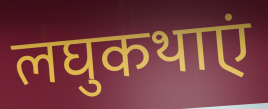
लघुकथाएं